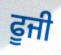
ਫੂਜੀ